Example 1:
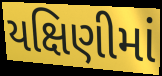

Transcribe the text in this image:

યક્ષિણીમાં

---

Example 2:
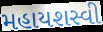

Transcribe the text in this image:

મહાયશસ્વી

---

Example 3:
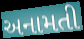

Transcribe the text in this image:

અનામતી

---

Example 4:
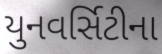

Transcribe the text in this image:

યુનવર્સિટીના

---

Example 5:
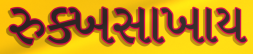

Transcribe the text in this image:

રુક્ખસાખાય